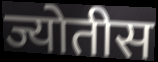
ज्योतीस